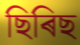
ছিৰিছ